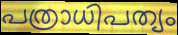
പത്രാധിപത്യം